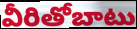
వీరితోబాటు